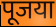
पूजया